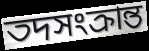
তদসংক্রান্ত